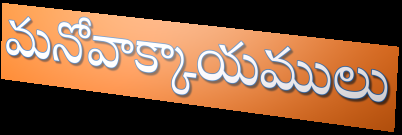
మనోవాక్కాయములు